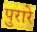
पुरारे